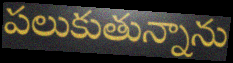
పలుకుతున్నాను